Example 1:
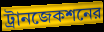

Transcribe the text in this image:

ট্রানজেকশনের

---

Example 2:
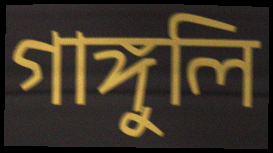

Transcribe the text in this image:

গাঙ্গুলি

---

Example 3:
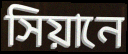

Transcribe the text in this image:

সিয়ানে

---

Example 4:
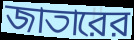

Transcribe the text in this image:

জাতারের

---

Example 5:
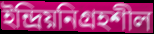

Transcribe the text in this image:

ইন্দ্রিয়নিগ্রহশীল